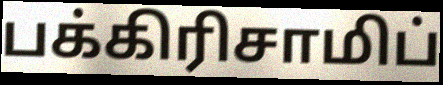
பக்கிரிசாமிப்